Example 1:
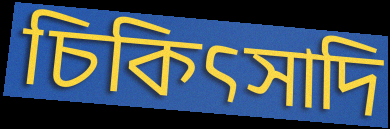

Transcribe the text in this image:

চিকিৎসাদি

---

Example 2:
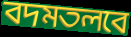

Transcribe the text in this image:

বদমতলবে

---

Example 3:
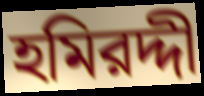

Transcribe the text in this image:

হমিরদ্দী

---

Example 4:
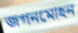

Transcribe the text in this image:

জগনমোহন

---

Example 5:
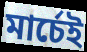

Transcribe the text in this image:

মার্চেই